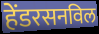
हेंडरसनविल